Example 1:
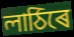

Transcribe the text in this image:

লাঠিৰে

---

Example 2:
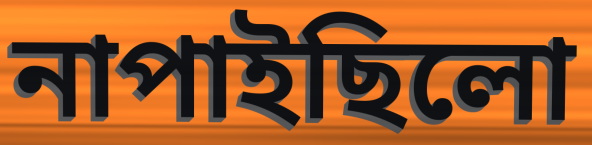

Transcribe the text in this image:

নাপাইছিলো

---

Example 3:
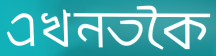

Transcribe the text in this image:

এখনতকৈ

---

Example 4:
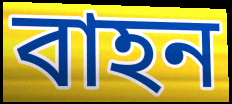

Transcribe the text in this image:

বাহন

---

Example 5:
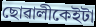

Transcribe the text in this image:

ছোৱালীকেইটা